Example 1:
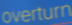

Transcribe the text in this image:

overturn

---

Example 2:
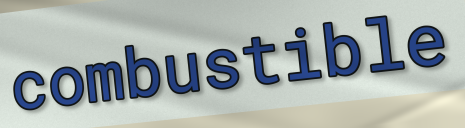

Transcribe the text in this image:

combustible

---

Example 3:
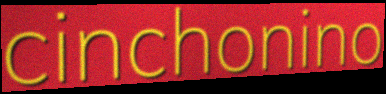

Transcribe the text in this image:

cinchonino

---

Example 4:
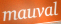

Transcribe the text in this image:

mauval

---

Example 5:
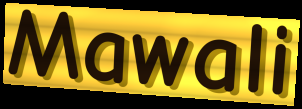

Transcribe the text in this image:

Mawali